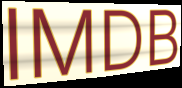
IMDB